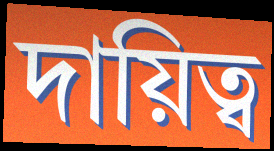
দায়িত্ব